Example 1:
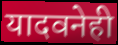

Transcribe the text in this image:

यादवनेही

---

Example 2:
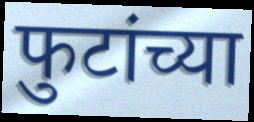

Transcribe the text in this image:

फुटांच्या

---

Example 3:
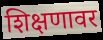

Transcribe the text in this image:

शिक्षणावर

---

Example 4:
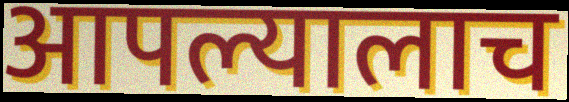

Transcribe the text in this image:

आपल्यालाच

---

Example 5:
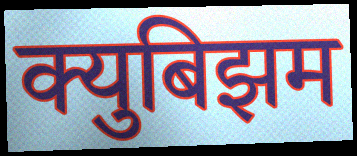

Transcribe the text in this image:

क्युबिझम